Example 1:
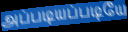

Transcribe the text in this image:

அப்படியப்படியே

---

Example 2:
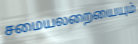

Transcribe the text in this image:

சமையலறையையும்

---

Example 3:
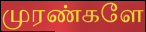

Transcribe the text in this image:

முரண்களே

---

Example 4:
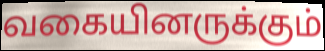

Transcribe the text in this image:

வகையினருக்கும்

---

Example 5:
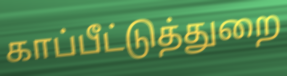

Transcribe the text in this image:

காப்பீட்டுத்துறை